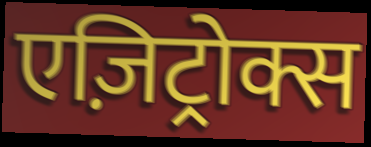
एज़िट्रोक्स